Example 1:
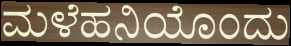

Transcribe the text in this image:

ಮಳೆಹನಿಯೊಂದು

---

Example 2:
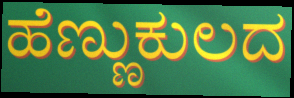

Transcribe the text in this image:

ಹೆಣ್ಣುಕುಲದ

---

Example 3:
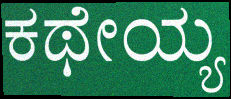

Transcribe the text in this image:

ಕಥೇಯ್ಯ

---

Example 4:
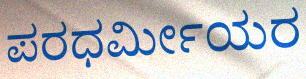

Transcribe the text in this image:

ಪರಧರ್ಮೀಯರ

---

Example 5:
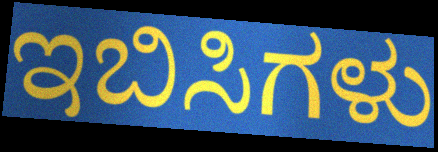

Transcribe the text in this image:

ಇಬಿಸಿಗಳು